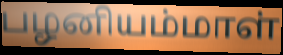
பழனியம்மாள்